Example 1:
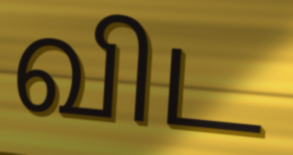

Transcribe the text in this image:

விட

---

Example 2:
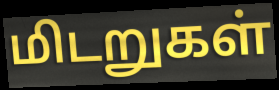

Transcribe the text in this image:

மிடறுகள்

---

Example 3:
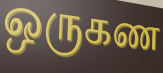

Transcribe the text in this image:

ஒருகண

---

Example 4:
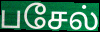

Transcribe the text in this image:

பசேல்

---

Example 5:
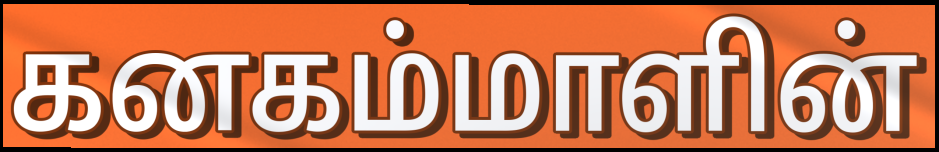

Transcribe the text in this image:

கனகம்மாளின்